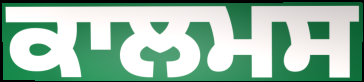
ਕਾਲਮਸ